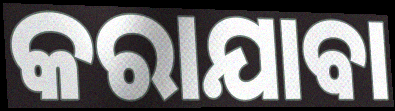
କରାଯାବା